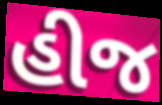
હીજ